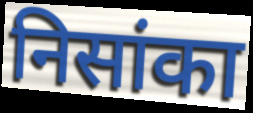
निसांका